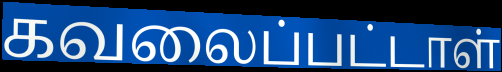
கவலைப்பட்டாள்